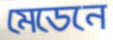
মেডেনে